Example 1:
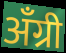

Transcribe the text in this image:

अँग्री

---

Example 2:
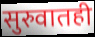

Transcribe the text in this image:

सुरुवातही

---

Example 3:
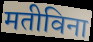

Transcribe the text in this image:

मतीविना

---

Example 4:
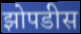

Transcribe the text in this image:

झोपडीस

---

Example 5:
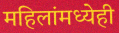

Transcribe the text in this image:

महिलांमध्येही